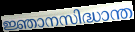
ജ്ഞാനസിദ്ധാന്ത